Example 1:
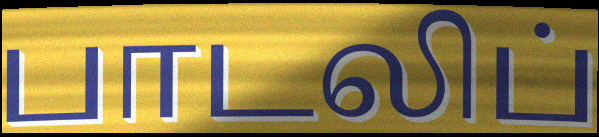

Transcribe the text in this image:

பாடலிப்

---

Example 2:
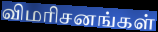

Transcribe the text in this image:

விமரிசனங்கள்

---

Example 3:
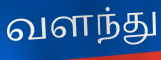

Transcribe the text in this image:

வளந்து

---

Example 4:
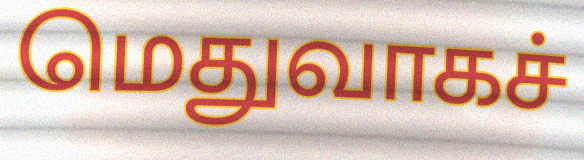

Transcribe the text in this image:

மெதுவாகச்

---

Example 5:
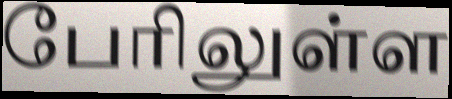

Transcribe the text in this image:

பேரிலுள்ள